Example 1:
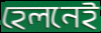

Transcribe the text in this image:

হেলনেই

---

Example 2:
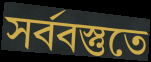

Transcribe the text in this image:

সর্ববস্তুতে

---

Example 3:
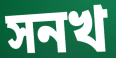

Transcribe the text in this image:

সনখ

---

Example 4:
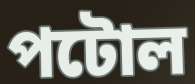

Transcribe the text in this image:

পটোল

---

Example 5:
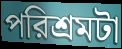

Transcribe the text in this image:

পরিশ্রমটা